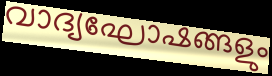
വാദ്യഘോഷങ്ങളും